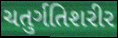
ચતુર્ગતિશરીર